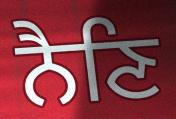
ਨੈਣਿ